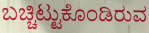
ಬಚ್ಚಿಟ್ಟುಕೊಂಡಿರುವ